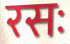
रसः